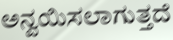
ಅನ್ವಯಿಸಲಾಗುತ್ತದೆ